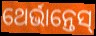
ଥେର୍ଭାନ୍ତେସ୍